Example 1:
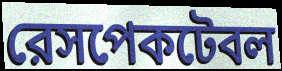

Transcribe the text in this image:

রেসপেকটেবল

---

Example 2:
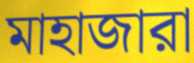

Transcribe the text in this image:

মাহাজারা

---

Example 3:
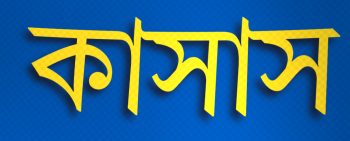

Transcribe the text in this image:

কাসাস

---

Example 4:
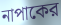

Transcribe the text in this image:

নাপাকের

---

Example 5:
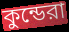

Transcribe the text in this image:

কুন্ডেরা